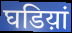
घडिय़ां